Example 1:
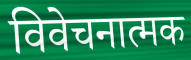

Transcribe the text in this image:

विवेचनात्मक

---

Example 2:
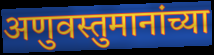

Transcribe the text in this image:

अणुवस्तुमानांच्या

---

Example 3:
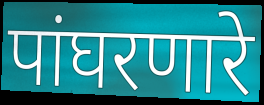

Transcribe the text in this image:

पांघरणारे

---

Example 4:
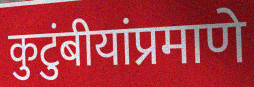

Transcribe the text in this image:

कुटुंबीयांप्रमाणे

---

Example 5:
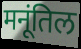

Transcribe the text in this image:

मनूंतिल